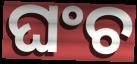
ଘଂଚ